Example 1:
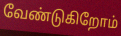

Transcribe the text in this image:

வேண்டுகிறோம்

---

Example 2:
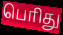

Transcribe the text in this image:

பெரிது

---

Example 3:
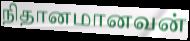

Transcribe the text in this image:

நிதானமானவன்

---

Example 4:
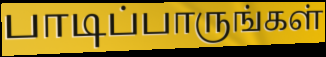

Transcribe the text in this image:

பாடிப்பாருங்கள்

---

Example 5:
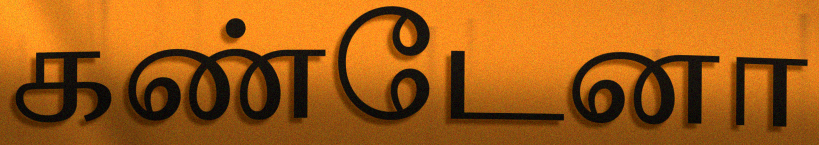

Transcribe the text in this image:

கண்டேனா